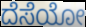
ದೆಸೆಯೋ